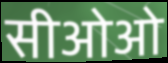
सीओओ